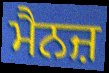
ਮੈਨਜ਼